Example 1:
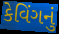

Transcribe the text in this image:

કેવિંગનું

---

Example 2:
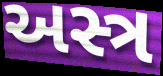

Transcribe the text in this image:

અસ્ત્ર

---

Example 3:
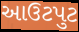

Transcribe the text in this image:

આઉટપુટ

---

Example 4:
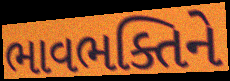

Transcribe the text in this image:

ભાવભક્તિને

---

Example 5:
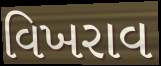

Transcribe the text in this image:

વિખરાવ